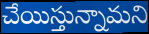
చేయిస్తున్నామని